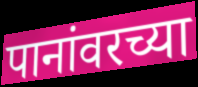
पानांवरच्या